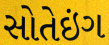
સોતેઇંગ